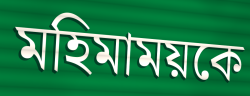
মহিমাময়কে